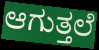
ಆಗುತ್ತಲೆ